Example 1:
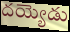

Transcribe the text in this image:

దయ్యెడు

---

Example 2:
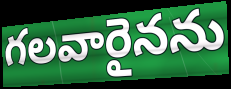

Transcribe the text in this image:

గలవారైనను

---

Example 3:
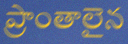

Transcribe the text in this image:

ప్రాంతాలైన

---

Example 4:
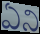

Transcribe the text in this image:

ఏని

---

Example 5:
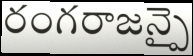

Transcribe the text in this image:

రంగరాజన్పై